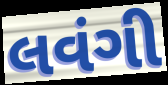
લવંગી